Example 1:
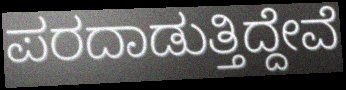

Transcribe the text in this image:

ಪರದಾಡುತ್ತಿದ್ದೇವೆ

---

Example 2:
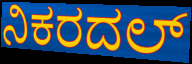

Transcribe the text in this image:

ನಿಕರದಲ್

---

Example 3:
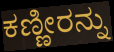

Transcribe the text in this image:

ಕಣ್ಣೀರನ್ನು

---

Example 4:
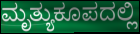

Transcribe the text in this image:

ಮೃತ್ಯುಕೂಪದಲ್ಲಿ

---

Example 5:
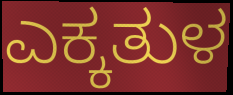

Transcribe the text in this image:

ಎಕ್ಕತುಳ